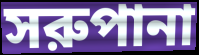
সরুপানা